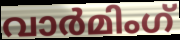
വാർമിംഗ്